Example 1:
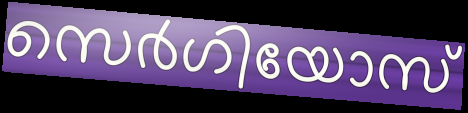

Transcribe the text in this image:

സെർഗിയോസ്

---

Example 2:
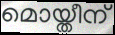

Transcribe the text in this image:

മൊയ്തീന്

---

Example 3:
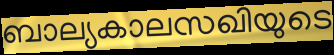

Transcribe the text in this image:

ബാല്യകാലസഖിയുടെ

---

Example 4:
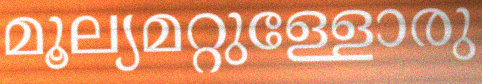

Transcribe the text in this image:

മൂല്യമറ്റുള്ളോരു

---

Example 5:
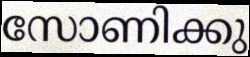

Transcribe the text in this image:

സോണിക്കു